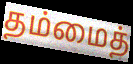
தம்மைத்